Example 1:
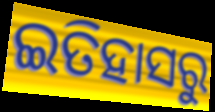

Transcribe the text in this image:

ଇତିହାସରୁ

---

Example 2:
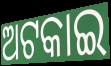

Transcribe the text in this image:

ଅଟକାଇ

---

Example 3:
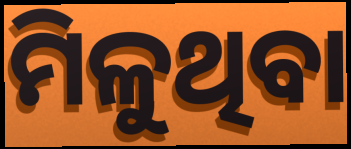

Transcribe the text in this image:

ମିଳୁଥିବା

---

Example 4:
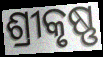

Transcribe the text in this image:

ଶ୍ରୀକୃଷ୍ଣ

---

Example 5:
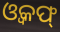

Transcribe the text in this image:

ଓ୍ୱକଫ୍